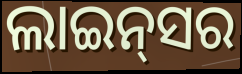
ଲାଇନ୍‍ସର